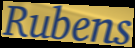
Rubens